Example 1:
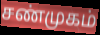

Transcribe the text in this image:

சண்முகம்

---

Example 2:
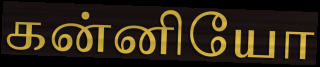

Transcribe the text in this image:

கன்னியோ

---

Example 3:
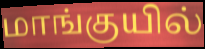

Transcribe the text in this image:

மாங்குயில்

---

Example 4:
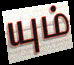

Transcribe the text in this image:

யும்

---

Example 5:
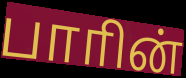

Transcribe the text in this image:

பாரின்